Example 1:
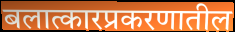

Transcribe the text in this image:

बलात्कारप्रकरणातील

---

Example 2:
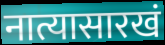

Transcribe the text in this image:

नात्यासारखं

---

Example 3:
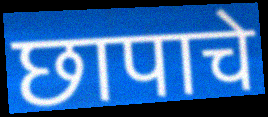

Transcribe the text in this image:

छापाचे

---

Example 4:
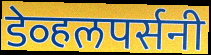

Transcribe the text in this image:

डेव्हलपर्सनी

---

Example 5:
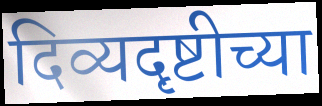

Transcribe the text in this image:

दिव्यदृष्टीच्या